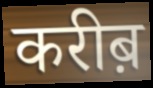
करीब़